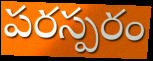
పరస్పరం